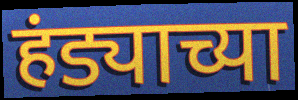
हंड्याच्या